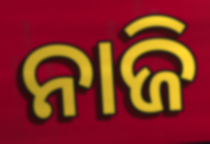
ନାଜି